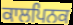
ਕਾਲਪਿਨਕ